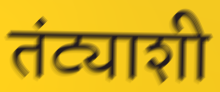
तंट्याशी